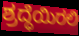
ಶ್ರದ್ಧೆಯಿರಲಿ